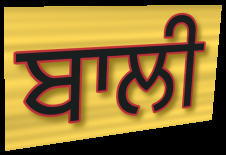
ਬਾਲੀ